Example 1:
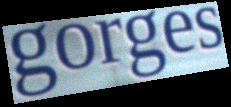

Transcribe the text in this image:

gorges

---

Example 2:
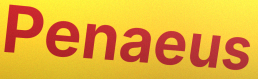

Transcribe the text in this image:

Penaeus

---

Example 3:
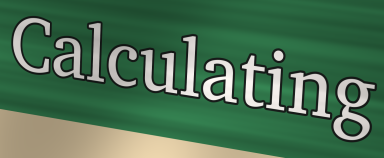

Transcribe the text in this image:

Calculating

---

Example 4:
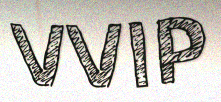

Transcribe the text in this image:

VVIP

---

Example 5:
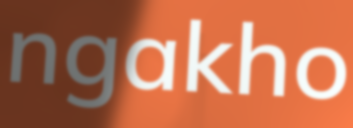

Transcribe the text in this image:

ngakho